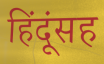
हिंदूंसह